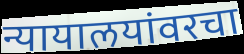
न्यायालयांवरचा